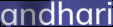
andhari